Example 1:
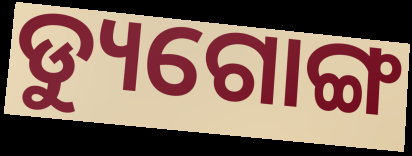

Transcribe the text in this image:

ଡ୍ୟୁଗୋଙ୍ଗ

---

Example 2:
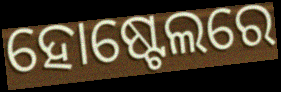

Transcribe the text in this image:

ହୋଷ୍ଟେଲରେ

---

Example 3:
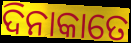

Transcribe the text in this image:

ଦିନାକାତେ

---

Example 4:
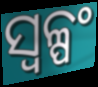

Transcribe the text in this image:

ସ୍ୱଳ୍ପଂ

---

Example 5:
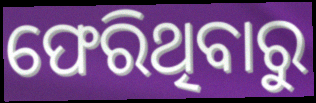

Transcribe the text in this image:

ଫେରିଥିବାରୁ